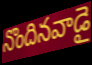
నొందినవాడై